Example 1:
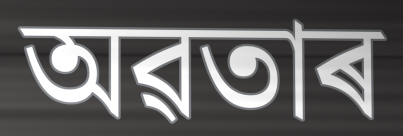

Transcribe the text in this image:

অৱতাৰ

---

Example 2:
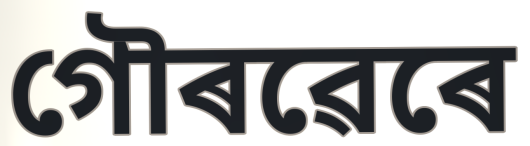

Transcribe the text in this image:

গৌৰৱেৰে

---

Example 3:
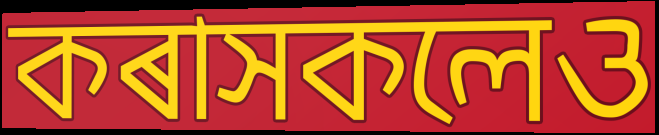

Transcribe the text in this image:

কৰাসকলেও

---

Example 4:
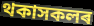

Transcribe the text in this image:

থকাসকলৰ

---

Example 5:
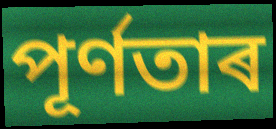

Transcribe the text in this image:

পূৰ্ণতাৰ